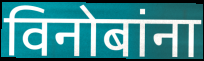
विनोबांना